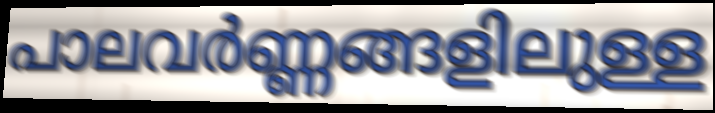
പാലവർണ്ണങ്ങളിലുള്ള